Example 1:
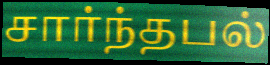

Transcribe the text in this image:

சார்ந்தபல்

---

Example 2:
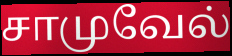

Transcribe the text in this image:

சாமுவேல்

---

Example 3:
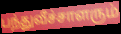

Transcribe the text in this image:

பந்துவீச்சாளரும்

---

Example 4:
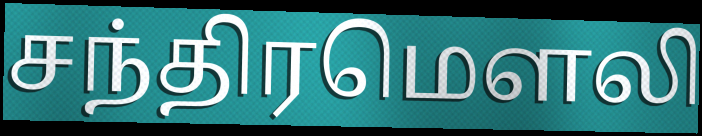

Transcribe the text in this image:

சந்திரமௌலி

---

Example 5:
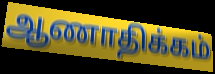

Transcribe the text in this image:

ஆணாதிக்கம்